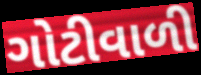
ગોટીવાળી